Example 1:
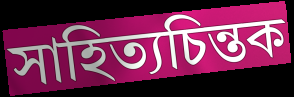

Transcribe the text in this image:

সাহিত্যচিন্তক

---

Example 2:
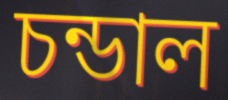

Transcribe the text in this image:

চন্ডাল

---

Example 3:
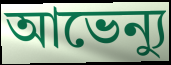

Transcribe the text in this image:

আভেন্যু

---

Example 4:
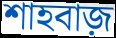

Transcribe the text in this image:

শাহবাজ়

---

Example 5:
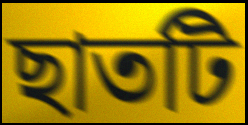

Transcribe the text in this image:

ছাতটি